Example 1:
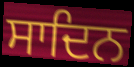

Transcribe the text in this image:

ਸਾਦਿਨ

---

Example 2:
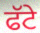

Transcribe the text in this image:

ਫੱਟੇ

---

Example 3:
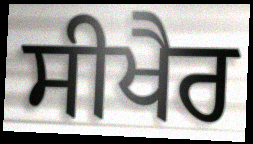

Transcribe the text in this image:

ਸੀਖੈਰ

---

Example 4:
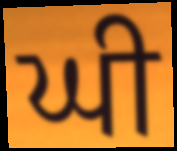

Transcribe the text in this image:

ਘੀ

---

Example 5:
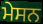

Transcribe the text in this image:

ਮੇਸਨ